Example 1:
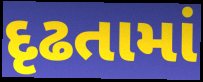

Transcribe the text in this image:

દૃઢતામાં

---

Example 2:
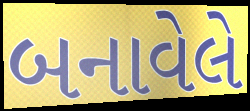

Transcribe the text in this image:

બનાવેલે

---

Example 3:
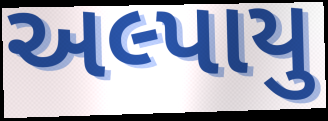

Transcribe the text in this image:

અલ્પાયુ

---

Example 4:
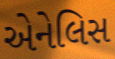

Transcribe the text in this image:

એનેલિસ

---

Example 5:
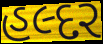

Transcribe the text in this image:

હલ્દર